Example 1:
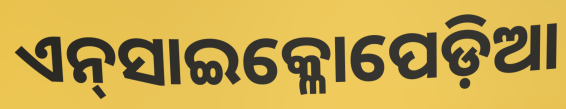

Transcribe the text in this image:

ଏନ୍‌ସାଇକ୍ଳୋପେଡ଼ିଆ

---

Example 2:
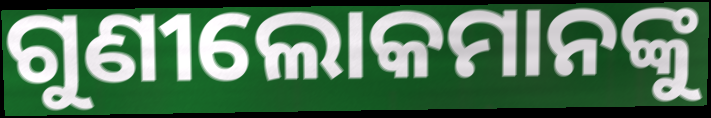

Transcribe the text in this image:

ଗୁଣୀଲୋକମାନଙ୍କୁ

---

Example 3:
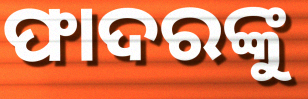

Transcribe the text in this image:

ଫାଦରଙ୍କୁ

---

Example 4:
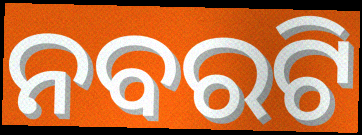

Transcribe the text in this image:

ନବରଟି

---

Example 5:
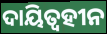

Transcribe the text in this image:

ଦାୟିତ୍ଵହୀନ